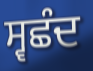
ਸ੍ਵਛੰਦ